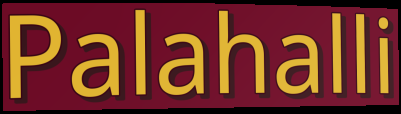
Palahalli